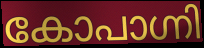
കോപാഗ്നി